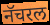
नॅचरल